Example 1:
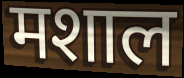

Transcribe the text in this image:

मशाल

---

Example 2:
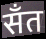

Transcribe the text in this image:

सँत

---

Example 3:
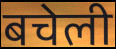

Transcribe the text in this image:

बचेली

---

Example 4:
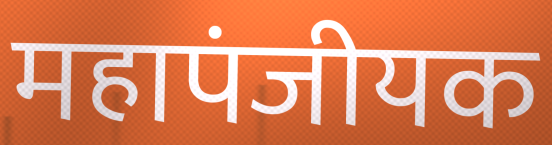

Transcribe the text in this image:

महापंजीयक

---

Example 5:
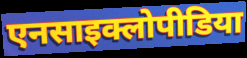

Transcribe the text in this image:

एनसाइक्लोपीडिया